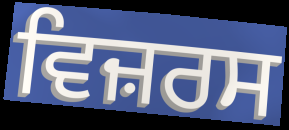
ਵਿਜ਼ਰਸ